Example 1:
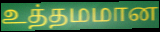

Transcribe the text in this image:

உத்தமமான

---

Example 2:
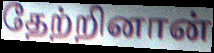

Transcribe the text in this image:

தேற்றினான்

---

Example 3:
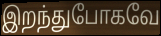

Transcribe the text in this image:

இறந்துபோகவே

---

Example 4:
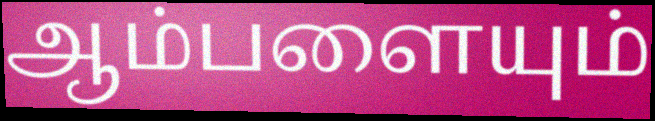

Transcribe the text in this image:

ஆம்பளையும்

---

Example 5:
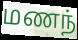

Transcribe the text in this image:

மணந்